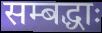
सम्बद्धाः